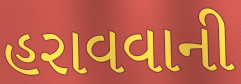
હરાવવાની